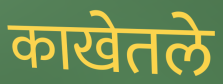
काखेतले